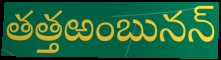
తత్తఱంబునన్